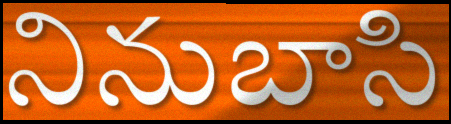
నినుబాసి